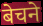
बेचने